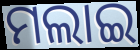
ମଲାଇ